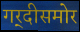
गर्दीसमोर